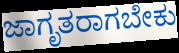
ಜಾಗೃತರಾಗಬೇಕು